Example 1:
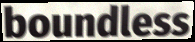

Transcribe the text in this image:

boundless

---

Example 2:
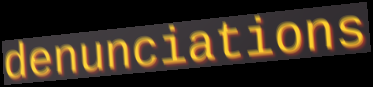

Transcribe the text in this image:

denunciations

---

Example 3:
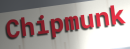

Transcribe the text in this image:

Chipmunk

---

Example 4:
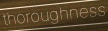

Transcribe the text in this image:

thoroughness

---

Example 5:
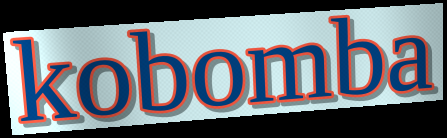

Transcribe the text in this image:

kobomba